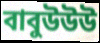
বাবুউউউ